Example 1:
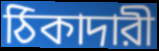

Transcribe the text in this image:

ঠিকাদারী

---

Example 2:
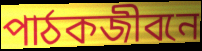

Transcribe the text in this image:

পাঠকজীবনে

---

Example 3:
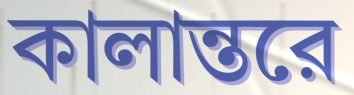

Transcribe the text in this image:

কালান্তরে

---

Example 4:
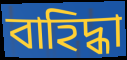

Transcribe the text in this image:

বাহিদ্ধা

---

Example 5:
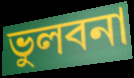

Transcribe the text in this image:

ভুলবনা